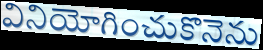
వినియోగించుకొనెను